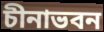
চীনাভবন